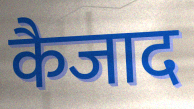
कैजाद